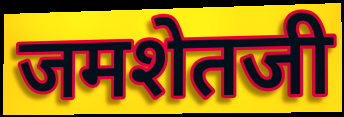
जमशेतजी